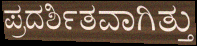
ಪ್ರದರ್ಶಿತವಾಗಿತ್ತು